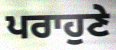
ਪਰਾਹੁਣੇ